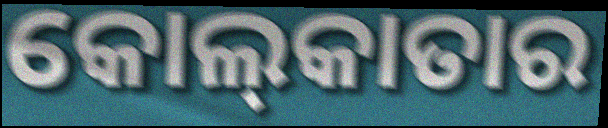
କୋଲ୍‍କାତାର